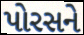
પોરસને